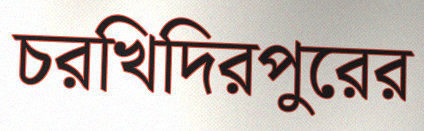
চরখিদিরপুরের